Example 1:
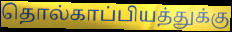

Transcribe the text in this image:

தொல்காப்பியத்துக்கு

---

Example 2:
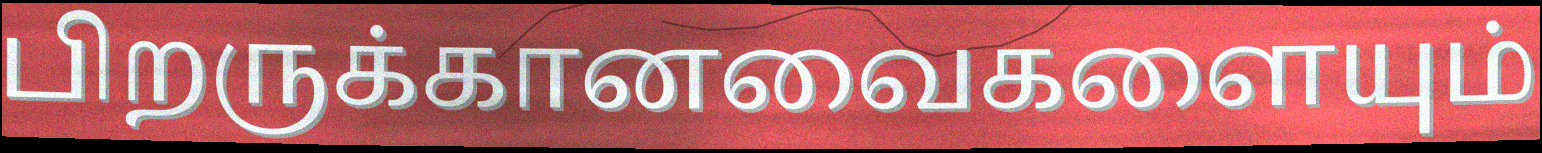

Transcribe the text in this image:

பிறருக்கானவைகளையும்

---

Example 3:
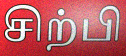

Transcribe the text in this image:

சிற்பி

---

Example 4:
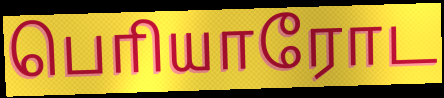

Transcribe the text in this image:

பெரியாரோட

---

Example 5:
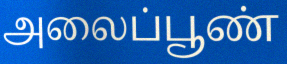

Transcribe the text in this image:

அலைப்பூண்